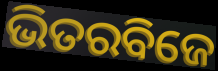
ଭିତରବିଜେ